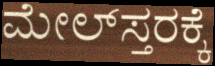
ಮೇಲ್‌ಸ್ತರಕ್ಕೆ